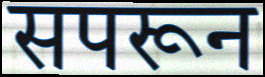
सपरून